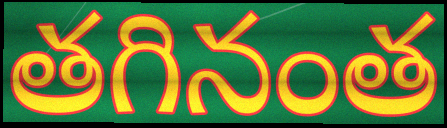
తగినంత